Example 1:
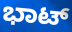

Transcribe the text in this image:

ಭಾಟ್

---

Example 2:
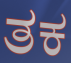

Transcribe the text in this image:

ತಕ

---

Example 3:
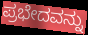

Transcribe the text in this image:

ಪ್ರಭೇದವನ್ನು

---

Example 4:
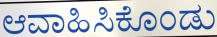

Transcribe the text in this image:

ಆವಾಹಿಸಿಕೊಂಡು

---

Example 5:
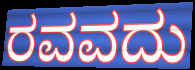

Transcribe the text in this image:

ರವವದು